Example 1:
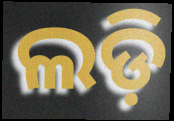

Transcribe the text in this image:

ଲଡ଼ି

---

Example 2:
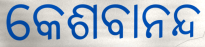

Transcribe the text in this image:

କେଶବାନନ୍ଦ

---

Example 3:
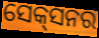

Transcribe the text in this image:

ସେକ୍‍ସନର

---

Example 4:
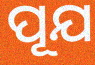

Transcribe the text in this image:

ପୂଯ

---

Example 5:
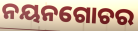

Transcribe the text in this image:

ନୟନଗୋଚର